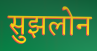
सुझलोन